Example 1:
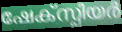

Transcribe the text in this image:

ഷേക്സ്പിയർ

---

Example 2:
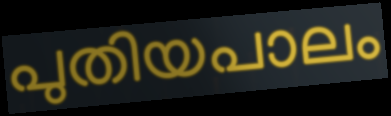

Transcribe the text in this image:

പുതിയപാലം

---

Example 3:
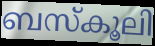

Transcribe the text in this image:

ബസ്കൂലി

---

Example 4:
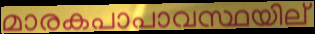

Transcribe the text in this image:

മാരകപാപാവസ്ഥയില്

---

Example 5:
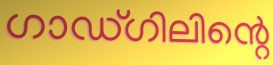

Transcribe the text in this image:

ഗാഡ്ഗിലിന്റെ